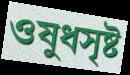
ওষুধসৃষ্ট